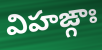
విహఙ్గాః